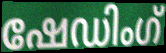
ഷേഡിംഗ്